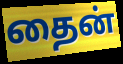
தைன்